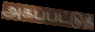
அகப்பட்டுத்